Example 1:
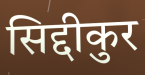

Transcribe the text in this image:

सिद्दीकुर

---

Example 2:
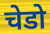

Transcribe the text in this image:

चेडो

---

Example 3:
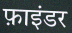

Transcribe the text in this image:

फ़ाइंडर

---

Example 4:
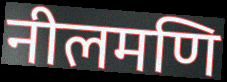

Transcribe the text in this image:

नीलमणि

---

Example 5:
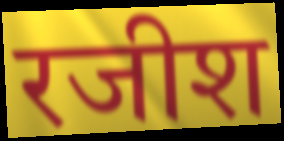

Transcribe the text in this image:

रजीश